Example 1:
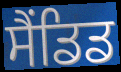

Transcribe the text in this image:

ਸੈਂਡਿਡ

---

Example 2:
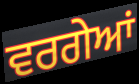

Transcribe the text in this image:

ਵਰਗੇਆਂ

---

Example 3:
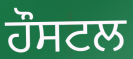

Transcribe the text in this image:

ਹੌਸਟਲ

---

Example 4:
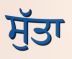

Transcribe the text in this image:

ਸੁੱਤਾ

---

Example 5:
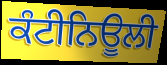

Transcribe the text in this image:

ਕੰਟੀਨਿਊਲੀ